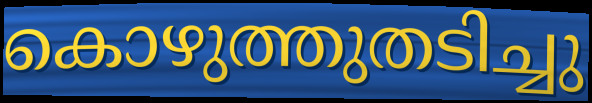
കൊഴുത്തുതടിച്ചു